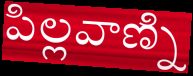
పిల్లవాణ్ని